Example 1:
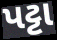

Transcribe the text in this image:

પટ્ટા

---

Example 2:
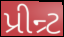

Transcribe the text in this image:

પ્રીન્ર્ટ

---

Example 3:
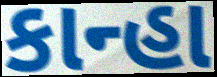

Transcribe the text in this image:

કાન્હા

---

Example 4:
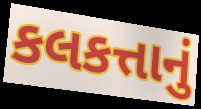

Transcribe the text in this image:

કલકત્તાનું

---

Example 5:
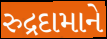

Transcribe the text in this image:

રુદ્રદામાને